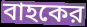
বাহকের